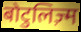
बोटुलिज़्म